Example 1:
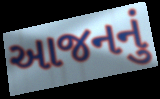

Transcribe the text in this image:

આજનનું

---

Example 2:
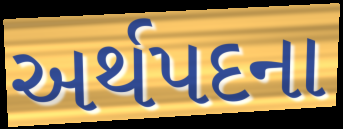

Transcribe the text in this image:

અર્થપદના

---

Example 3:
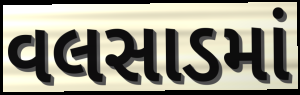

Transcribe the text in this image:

વલસાડમાં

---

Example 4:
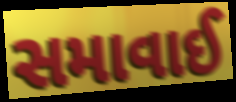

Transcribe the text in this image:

સમાવાઈ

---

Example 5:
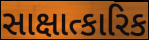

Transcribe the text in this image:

સાક્ષાત્કારિક